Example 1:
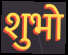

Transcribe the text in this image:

शुभो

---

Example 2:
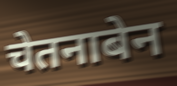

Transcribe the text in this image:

चेतनाबेन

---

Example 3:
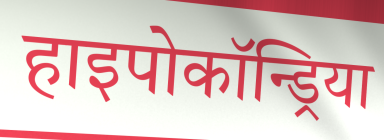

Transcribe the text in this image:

हाइपोकॉन्ड्रिया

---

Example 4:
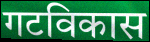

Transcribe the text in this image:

गटविकास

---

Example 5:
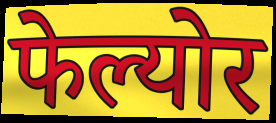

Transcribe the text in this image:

फेल्योर